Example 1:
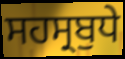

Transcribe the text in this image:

ਸਹਸ੍ਰਬੁਧੇ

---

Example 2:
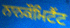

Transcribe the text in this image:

ਨਾਨਕੌਮਿਟੈਂਟ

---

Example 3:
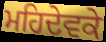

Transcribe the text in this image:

ਮਹਿਦੇਵਕੇ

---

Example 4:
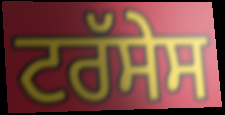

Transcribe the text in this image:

ਟਰੱਸੇਸ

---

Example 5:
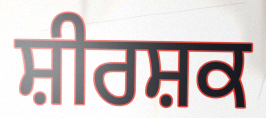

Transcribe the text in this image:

ਸ਼ੀਰਸ਼ਕ